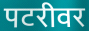
पटरीवर